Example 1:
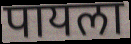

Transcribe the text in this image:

पायला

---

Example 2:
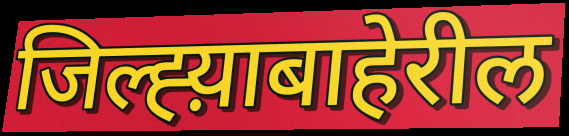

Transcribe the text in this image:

जिल्ह्य़ाबाहेरील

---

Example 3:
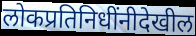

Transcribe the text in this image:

लोकप्रतिनिधींनीदेखील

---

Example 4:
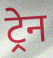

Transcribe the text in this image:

ट्रेन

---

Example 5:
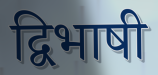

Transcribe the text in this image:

द्विभाषी